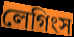
লেগিংস